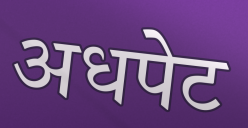
अधपेट